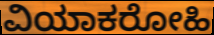
ವಿಯಾಕರೋಹಿ